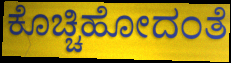
ಕೊಚ್ಚಿಹೋದಂತೆ